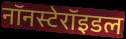
नॉनस्टेरॉइडल